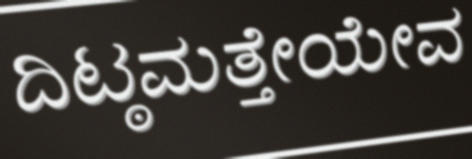
ದಿಟ್ಠಮತ್ತೇಯೇವ